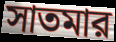
সাতমার